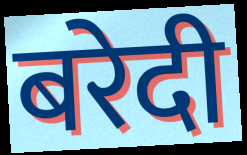
बरेदी